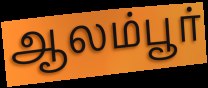
ஆலம்பூர்